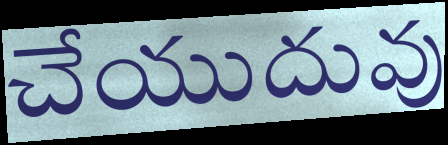
చేయుదువు